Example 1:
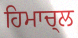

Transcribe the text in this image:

ਹਿਮਾਚ੍ਲ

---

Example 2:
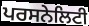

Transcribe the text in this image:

ਪਰਸਨੇਲਿਟੀ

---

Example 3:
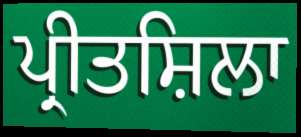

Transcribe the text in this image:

ਪ੍ਰੀਤਸ਼ਿਲਾ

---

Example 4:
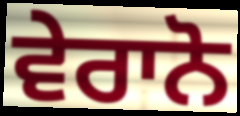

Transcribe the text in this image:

ਵੇਰਾਨੋ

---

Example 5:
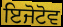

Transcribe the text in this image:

ਇਜੋਟੋਵ